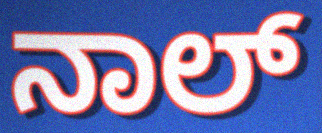
ನಾಲ್